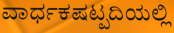
ವಾರ್ಧಕಷಟ್ಪದಿಯಲ್ಲಿ